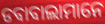
ଡବାବାଲାମାନେ